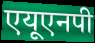
एयूएनपी